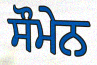
ਸੌਮੇਨ